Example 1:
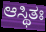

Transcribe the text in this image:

ಆಸ್ಥಿತಃ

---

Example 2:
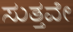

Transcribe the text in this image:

ಸುತ್ತವೇ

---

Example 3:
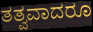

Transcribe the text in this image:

ತತ್ವವಾದರೂ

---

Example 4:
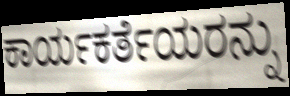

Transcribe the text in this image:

ಕಾರ್ಯಕರ್ತೆಯರನ್ನು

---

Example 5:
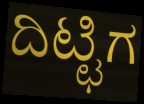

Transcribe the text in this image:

ದಿಟ್ಟಿಗ